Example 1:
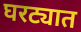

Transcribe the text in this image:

घरट्यात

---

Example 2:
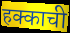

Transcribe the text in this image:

हक्काची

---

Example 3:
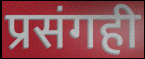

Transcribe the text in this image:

प्रसंगही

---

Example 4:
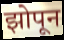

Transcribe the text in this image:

झोपून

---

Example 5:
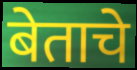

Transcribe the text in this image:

बेताचे